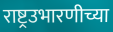
राष्ट्रउभारणीच्या